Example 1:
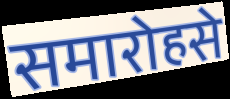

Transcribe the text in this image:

समारोहसे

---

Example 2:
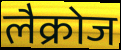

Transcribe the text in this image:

लैक्रोज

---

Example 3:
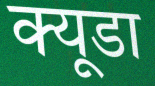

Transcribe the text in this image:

क्यूडा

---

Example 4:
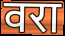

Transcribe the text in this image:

वरा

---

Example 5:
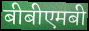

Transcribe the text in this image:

बीबीएमबी